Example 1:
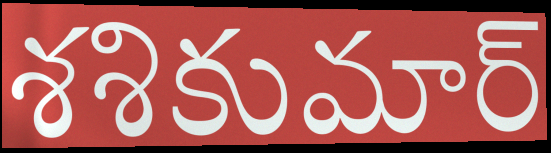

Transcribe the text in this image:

శశికుమార్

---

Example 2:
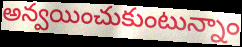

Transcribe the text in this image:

అన్వయించుకుంటున్నాం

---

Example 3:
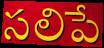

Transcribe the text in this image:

సలిపే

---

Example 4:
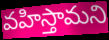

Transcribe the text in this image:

వహిస్తామని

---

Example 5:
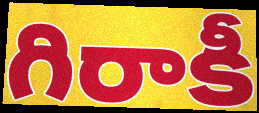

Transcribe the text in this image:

గిరాకీ